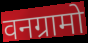
वनग्रामो